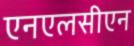
एनएलसीएन